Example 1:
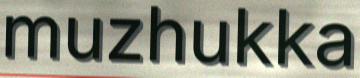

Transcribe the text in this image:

muzhukka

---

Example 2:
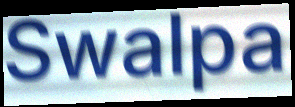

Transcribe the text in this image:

Swalpa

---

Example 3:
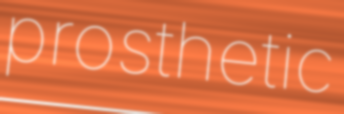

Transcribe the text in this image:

prosthetic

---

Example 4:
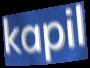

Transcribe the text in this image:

kapil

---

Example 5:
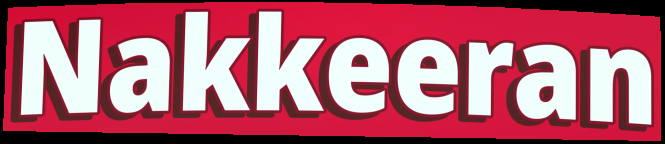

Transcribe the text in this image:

Nakkeeran